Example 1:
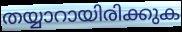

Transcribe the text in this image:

തയ്യാറായിരിക്കുക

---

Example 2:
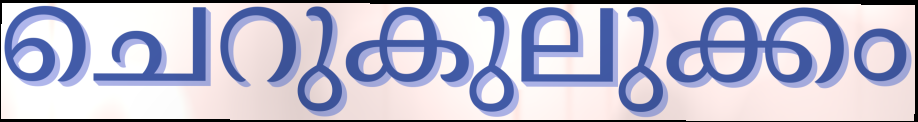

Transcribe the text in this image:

ചെറുകുലുക്കം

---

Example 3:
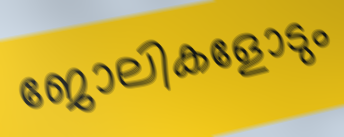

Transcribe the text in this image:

ജോലികളോടും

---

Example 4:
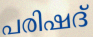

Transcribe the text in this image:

പരിഷദ്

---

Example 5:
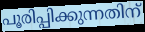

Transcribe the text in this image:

പൂരിപ്പിക്കുന്നതിന്